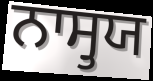
ਨਾਸ੍ਤਯ